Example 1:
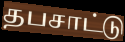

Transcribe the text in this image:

தபசாட்டு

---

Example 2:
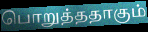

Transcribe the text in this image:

பொறுத்ததாகும்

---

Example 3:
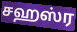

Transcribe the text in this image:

சஹஸ்ர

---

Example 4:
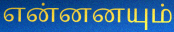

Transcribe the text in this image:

என்னனயும்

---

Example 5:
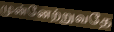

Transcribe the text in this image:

முன்னேற்றுவதே